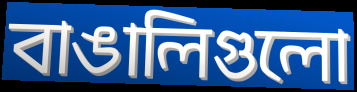
বাঙালিগুলো